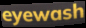
eyewash